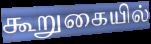
கூறுகையில்